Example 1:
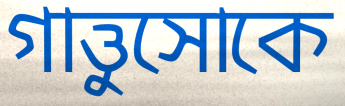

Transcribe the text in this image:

গাত্তুসোকে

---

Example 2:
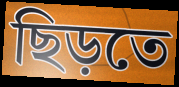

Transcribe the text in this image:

ছিড়তে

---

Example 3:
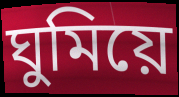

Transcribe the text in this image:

ঘুমিয়ে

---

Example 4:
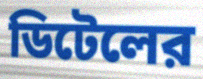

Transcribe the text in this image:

ডিটেলের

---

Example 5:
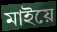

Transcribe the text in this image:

মাইয়ে